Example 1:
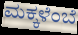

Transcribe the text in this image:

ಮಕ್ಕಳೆಂಬೆ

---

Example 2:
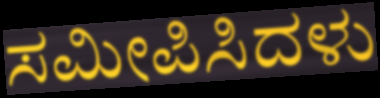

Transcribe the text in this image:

ಸಮೀಪಿಸಿದಳು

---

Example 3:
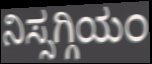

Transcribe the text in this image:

ನಿಸ್ಸಗ್ಗಿಯಂ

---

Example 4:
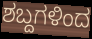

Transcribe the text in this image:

ಶಬ್ದಗಳಿಂದ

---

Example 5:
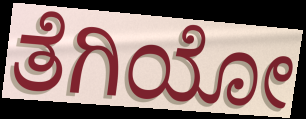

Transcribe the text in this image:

ತೆಗಿಯೋ